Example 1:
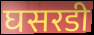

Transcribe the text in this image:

घसरडी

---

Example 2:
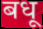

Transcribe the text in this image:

बधू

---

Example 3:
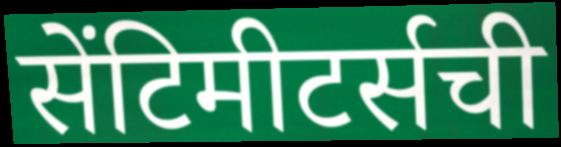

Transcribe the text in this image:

सेंटिमीटर्सची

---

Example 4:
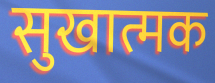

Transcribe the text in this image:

सुखात्मक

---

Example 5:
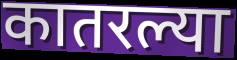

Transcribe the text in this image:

कातरल्या